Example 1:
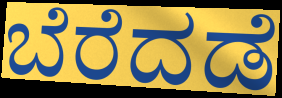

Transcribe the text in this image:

ಬೆರೆದಡೆ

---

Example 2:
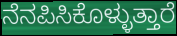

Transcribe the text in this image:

ನೆನಪಿಸಿಕೊಳ್ಳುತ್ತಾರೆ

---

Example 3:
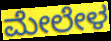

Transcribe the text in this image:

ಮೇಲೇಳ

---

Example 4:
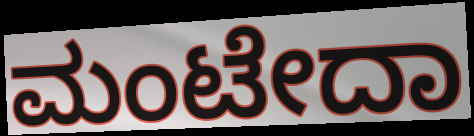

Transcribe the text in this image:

ಮಂಟೇದಾ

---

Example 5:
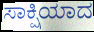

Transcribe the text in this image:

ಸಾಕ್ಷಿಯಾದ